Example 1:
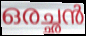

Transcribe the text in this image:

ഒരച്ഛൻ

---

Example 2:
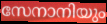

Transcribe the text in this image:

സേനാനിയും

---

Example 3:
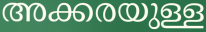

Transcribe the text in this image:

അക്കരയുള്ള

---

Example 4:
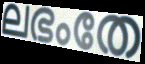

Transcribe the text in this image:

ലഭംതേ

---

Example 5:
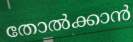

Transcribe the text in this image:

തോൽക്കാൻ